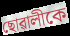
ছোৱালীকে